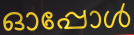
ഓപ്പോൾ